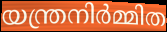
യന്ത്രനിർമ്മിത